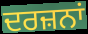
ਦਰਜ਼ਨਾਂ